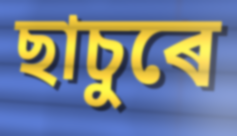
ছাচুৰে